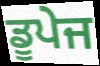
ਡੂਪੇਜ